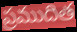
ప్రముదిత